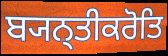
ਬ੍ਯਨ੍ਤੀਕਰੋਤਿ